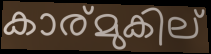
കാര്മുകില്